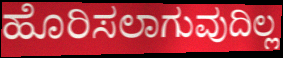
ಹೊರಿಸಲಾಗುವುದಿಲ್ಲ